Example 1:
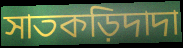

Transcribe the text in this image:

সাতকড়িদাদা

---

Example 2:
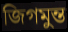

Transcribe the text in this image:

জিগমুন্ত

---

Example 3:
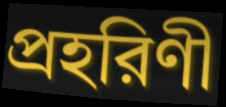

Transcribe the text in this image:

প্রহরিণী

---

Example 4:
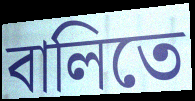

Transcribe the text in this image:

বালিতে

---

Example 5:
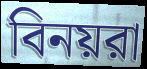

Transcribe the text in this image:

বিনয়রা